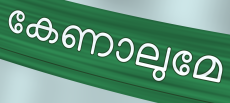
കേണാലുമേ